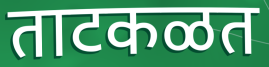
ताटकळत